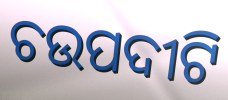
ଚଉପଦୀଟି